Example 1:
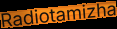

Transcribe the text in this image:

Radiotamizha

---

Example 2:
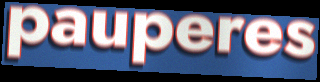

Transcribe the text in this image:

pauperes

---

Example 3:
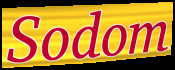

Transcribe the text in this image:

Sodom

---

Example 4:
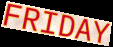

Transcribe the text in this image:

FRIDAY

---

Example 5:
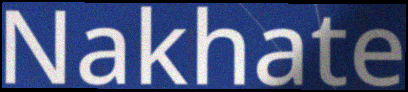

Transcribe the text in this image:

Nakhate